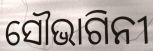
ସୌଭାଗିନୀ